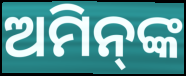
ଅମିନ୍‌ଙ୍କ